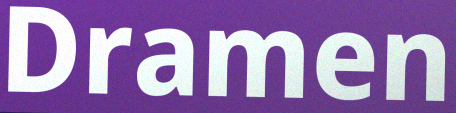
Dramen